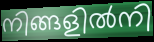
നിങ്ങളിൽനി